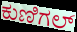
ಕುಣಿಗಲ್